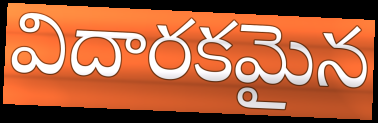
విదారకమైన